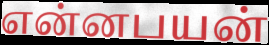
என்னபயன்